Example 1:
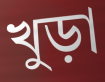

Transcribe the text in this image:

খুড়া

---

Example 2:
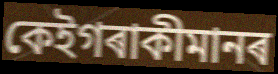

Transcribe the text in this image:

কেইগৰাকীমানৰ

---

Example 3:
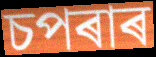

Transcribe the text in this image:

চপৰাৰ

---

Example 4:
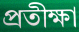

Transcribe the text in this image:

প্ৰতীক্ষা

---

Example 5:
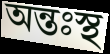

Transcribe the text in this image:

অন্তঃস্থ